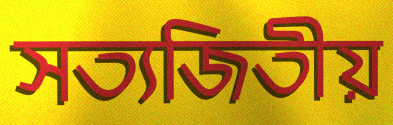
সত্যজিতীয়